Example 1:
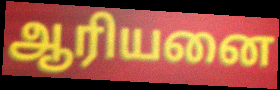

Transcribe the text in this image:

ஆரியனை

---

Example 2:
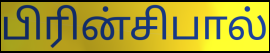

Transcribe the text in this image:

பிரின்சிபால்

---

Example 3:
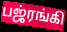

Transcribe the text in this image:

பஜ்ரங்கி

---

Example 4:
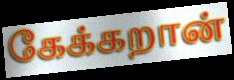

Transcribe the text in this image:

கேக்கறான்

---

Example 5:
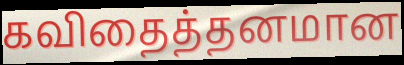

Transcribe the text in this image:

கவிதைத்தனமான